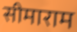
सीमाराम